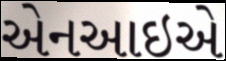
એનઆઇએ